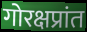
गोरक्षप्रांत